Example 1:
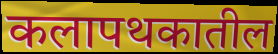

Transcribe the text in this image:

कलापथकातील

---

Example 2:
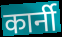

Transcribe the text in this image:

कार्नी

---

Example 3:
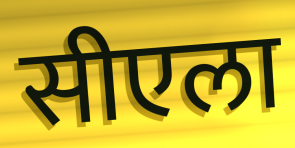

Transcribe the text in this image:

सीएला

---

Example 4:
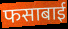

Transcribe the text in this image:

फसाबाई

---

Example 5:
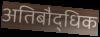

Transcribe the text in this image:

अतिबौद्धिक